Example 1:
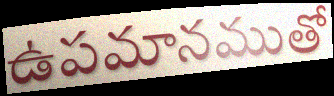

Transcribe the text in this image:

ఉపమానముతో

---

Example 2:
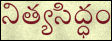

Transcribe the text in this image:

నిత్యసిద్ధం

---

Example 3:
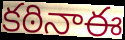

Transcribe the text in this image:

కఠినాఈ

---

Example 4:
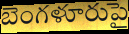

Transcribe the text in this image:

బెంగళూరుపై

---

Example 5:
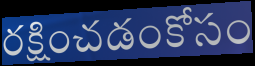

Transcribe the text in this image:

రక్షించడంకోసం